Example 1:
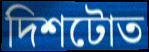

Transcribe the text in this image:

দিশটোত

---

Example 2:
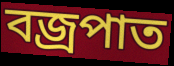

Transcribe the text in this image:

বজ্ৰপাত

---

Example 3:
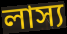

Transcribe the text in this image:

লাস্য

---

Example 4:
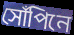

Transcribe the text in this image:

সোঁপিনে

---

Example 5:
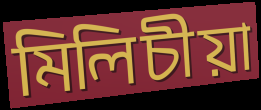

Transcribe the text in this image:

মিলিচীয়া